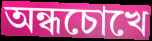
অন্ধচোখে